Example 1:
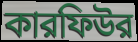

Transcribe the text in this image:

কারফিউর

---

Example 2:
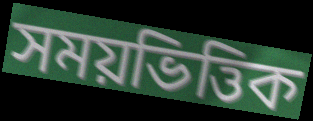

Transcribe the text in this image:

সময়ভিত্তিক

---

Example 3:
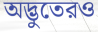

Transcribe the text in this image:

অদ্ভুতেরও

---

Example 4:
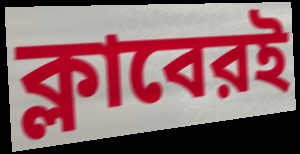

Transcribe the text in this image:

ক্লাবেরই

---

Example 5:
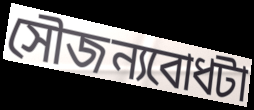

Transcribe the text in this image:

সৌজন্যবোধটা